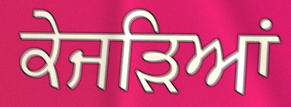
ਕੇਜੜਿਆਂ